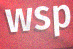
wsp